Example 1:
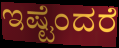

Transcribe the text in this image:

ಇಷ್ಟೆಂದರೆ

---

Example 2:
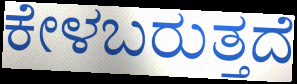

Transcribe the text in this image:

ಕೇಳಬರುತ್ತದೆ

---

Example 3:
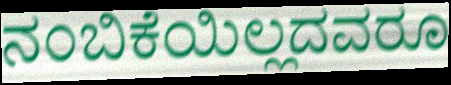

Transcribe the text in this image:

ನಂಬಿಕೆಯಿಲ್ಲದವರೂ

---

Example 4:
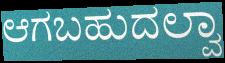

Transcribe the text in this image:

ಆಗಬಹುದಲ್ವಾ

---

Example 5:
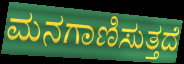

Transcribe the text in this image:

ಮನಗಾಣಿಸುತ್ತದೆ